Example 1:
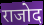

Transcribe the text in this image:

राजोद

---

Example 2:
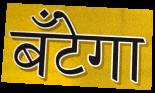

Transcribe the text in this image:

बँटेगा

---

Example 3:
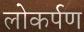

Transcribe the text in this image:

लोकर्पण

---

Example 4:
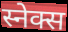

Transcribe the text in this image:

स्नेक्स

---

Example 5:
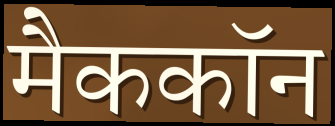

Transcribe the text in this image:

मैककॉन